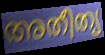
അതീത്യ